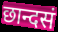
छान्दसं